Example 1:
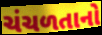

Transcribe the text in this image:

ચંચળતાનો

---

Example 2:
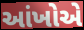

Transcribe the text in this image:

આંખોએ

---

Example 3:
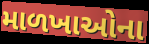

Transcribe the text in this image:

માળખાઓના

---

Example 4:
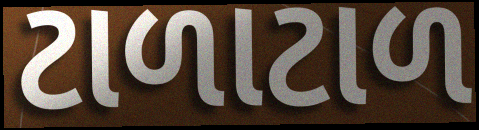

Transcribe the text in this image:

ટાળાટાળ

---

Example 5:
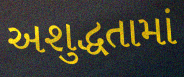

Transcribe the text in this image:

અશુદ્ધતામાં